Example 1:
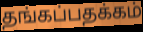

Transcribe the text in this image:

தங்கப்பதக்கம்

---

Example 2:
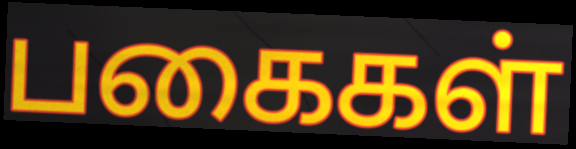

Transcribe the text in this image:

பகைகள்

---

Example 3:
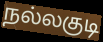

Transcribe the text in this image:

நல்லகுடி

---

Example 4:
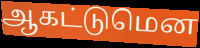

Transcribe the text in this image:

ஆகட்டுமென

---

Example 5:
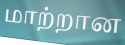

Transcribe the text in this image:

மாற்றான